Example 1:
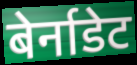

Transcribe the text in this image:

बेर्नाडेट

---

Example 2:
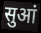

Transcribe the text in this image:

सुआं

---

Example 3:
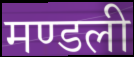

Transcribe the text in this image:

मण्डली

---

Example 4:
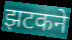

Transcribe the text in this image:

झटकने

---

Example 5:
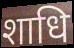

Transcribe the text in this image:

शाधि